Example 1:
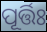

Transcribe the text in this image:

ପୂର୍ତ୍ତିଃ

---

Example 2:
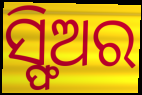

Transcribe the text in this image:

ସ୍ଫିଅର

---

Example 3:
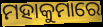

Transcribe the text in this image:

ମହାକୁମାରେ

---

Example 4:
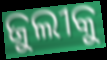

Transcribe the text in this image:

ଜୁଲୀକୁ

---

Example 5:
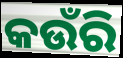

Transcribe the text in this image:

କଉଁରି